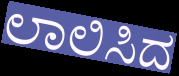
ಲಾಲಿಸಿದ